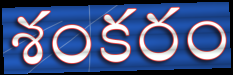
శంకరం